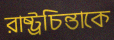
রাষ্ট্রচিন্তাকে